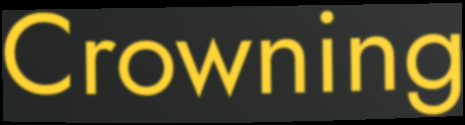
Crowning